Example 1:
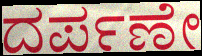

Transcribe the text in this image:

ದರ್ಪಣೇ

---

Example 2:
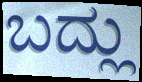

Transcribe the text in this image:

ಬದ್ಲು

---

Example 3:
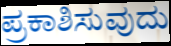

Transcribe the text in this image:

ಪ್ರಕಾಶಿಸುವುದು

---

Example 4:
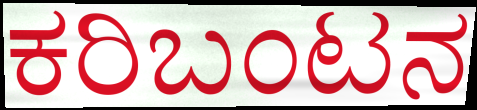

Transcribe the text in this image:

ಕರಿಬಂಟನ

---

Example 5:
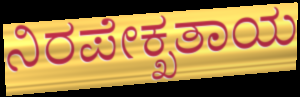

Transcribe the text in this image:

ನಿರಪೇಕ್ಖತಾಯ